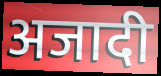
अजादी